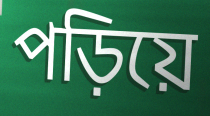
পড়িয়ে